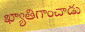
ఖ్యాతిగాంచాడు